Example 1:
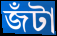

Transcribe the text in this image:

জঁটা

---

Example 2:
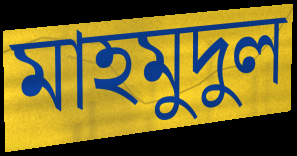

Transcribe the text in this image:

মাহমুদুল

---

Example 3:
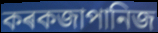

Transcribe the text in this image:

কৰকজাপানিজ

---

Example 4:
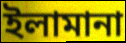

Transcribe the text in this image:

ইলামানা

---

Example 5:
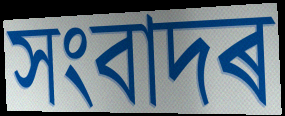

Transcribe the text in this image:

সংবাদৰ